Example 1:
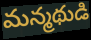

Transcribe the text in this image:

మన్మథుడి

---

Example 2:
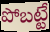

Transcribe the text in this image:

పోబట్టే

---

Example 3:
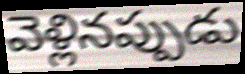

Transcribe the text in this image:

వెళ్లినప్పుడు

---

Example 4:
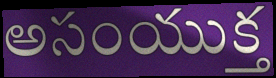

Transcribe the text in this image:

అసంయుక్త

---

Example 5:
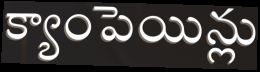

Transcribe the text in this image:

క్యాంపెయిన్లు